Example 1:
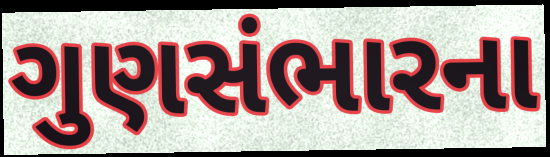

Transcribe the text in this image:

ગુણસંભારના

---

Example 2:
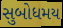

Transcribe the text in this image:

સુબોધમય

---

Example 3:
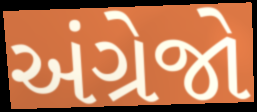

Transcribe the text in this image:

અંગ્રેજો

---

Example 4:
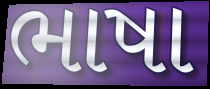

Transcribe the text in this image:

ભાષા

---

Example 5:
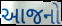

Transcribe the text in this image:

આજનો